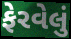
ફેરવેલું